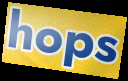
hops